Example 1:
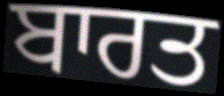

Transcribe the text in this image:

ਬਾਰਤ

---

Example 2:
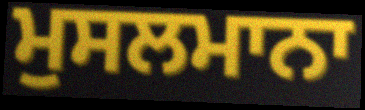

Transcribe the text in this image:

ਮੁਸਲਮਾਨਾ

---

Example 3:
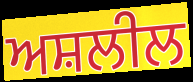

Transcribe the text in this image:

ਅਸ਼ਲੀਲ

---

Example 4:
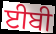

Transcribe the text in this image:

ਈਬੀ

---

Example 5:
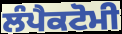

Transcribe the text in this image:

ਲੰਪੈਕਟੋਮੀ